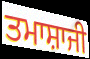
ਤਮਾਸ਼ਾਜੀ